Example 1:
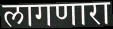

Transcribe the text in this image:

लागणारा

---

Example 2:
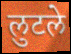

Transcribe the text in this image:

लुटले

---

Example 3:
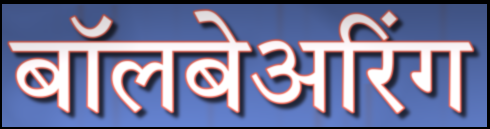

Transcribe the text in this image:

बॉलबेअरिंग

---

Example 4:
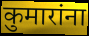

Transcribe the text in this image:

कुमारांना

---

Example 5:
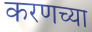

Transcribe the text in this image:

करणच्या